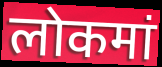
लोकमां